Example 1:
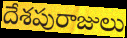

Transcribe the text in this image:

దేశపురాజులు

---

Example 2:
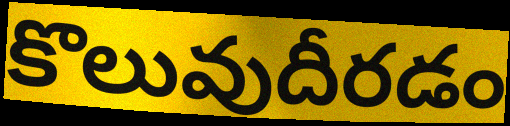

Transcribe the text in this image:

కొలువుదీరడం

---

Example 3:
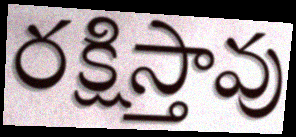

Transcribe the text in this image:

రక్షిస్తావు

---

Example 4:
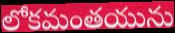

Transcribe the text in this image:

లోకమంతయును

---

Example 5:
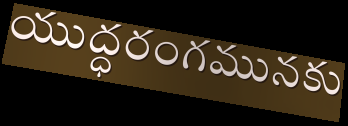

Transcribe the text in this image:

యుద్ధరంగమునకు